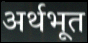
अर्थभूत